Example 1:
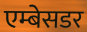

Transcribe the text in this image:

एम्‍बेसडर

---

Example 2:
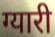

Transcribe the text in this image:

ग्यारी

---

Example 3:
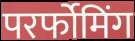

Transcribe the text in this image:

परर्फोमिंग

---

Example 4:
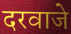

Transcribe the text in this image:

दरवाजे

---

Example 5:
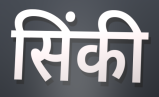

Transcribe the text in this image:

सिंकी